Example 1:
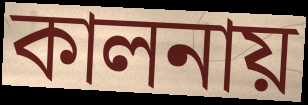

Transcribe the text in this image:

কালনায়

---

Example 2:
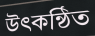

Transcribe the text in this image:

উৎকন্ঠিত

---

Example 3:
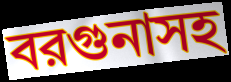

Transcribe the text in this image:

বরগুনাসহ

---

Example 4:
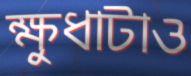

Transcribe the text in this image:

ক্ষুধাটাও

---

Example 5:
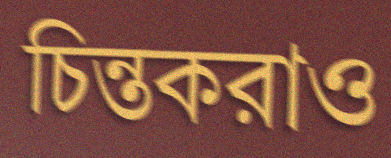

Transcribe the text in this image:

চিন্তকরাও